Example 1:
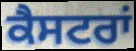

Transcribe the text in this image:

ਕੈਸਟਰਾਂ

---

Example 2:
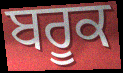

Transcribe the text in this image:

ਬਰੂਕ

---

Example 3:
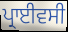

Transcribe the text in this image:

ਪ੍ਰਾਈਵਸੀ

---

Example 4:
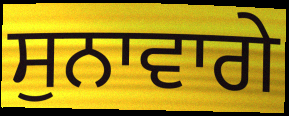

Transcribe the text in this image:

ਸੁਨਾਵਾਗੇ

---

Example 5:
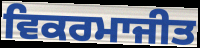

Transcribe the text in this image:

ਵਿਕਰਮਾਜੀਤ